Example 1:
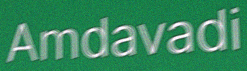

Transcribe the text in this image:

Amdavadi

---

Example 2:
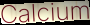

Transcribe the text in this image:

Calcium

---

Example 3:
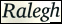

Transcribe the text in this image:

Ralegh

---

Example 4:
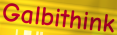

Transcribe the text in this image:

Galbithink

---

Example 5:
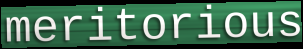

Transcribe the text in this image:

meritorious